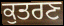
ਕੁਤਰਣ